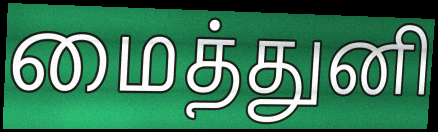
மைத்துனி